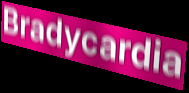
Bradycardia